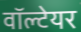
वॉल्टेयर